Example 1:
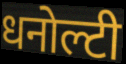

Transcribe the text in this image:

धनोल्‍टी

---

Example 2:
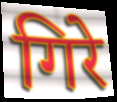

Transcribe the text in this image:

गिरे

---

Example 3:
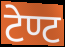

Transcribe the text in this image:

टेण्ट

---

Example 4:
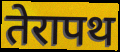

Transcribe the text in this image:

तेरापथ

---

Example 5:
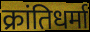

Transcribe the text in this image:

क्रांतिधर्मा